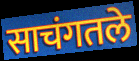
साचंगतले